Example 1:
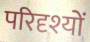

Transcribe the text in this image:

परिदृश्यों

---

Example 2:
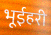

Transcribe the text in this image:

भूईहरी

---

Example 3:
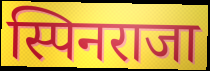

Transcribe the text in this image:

स्पिनराजा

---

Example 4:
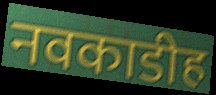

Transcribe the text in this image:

नवकाडीह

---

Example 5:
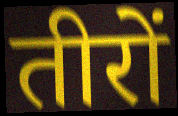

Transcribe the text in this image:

तीरों